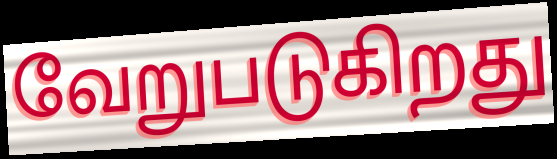
வேறுபடுகிறது